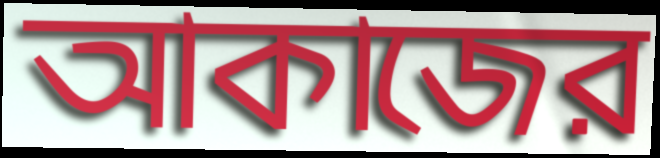
আকাজের